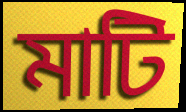
মাটি